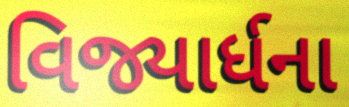
વિજ્યાર્ધના